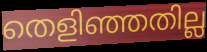
തെളിഞ്ഞതില്ല